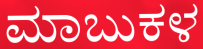
ಮಾಬುಕಳ